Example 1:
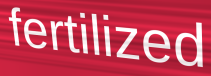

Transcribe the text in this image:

fertilized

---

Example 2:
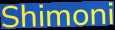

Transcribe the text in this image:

Shimoni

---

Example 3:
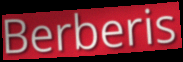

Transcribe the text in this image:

Berberis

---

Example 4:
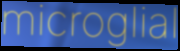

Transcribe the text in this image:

microglial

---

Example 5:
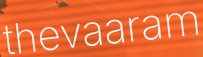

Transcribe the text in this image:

thevaaram